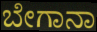
ಬೇಗಾನಾ